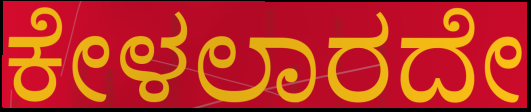
ಕೇಳಲಾರದೇ